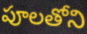
పూలతోని